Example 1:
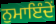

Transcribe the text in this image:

ਨੁਮਾਇੰਦੇਂ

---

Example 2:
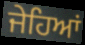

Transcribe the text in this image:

ਜੇਹਿਆਂ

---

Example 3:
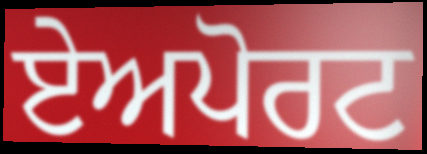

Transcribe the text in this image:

ਏਅਪੋਰਟ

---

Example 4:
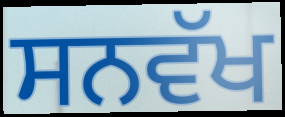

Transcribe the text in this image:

ਸਨਵੱਖ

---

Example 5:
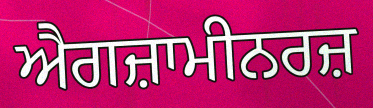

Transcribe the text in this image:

ਐਗਜ਼ਾਮੀਨਰਜ਼